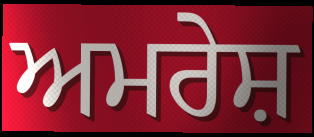
ਅਮਰੇਸ਼